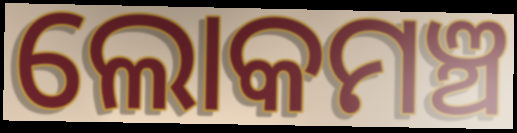
ଲୋକମଞ୍ଚ